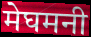
मेघमनी